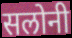
सलोनी